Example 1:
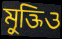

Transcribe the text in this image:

মুক্তিও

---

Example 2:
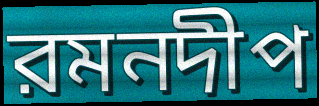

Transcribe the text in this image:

রমনদীপ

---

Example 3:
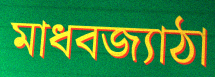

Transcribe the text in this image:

মাধবজ্যাঠা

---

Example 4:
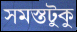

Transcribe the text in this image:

সমস্তটুকু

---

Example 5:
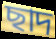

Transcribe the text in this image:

ছাদ